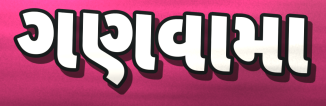
ગણવામા